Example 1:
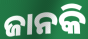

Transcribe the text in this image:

ଜାନକି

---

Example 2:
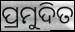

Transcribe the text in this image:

ପ୍ରମୁଦିତ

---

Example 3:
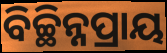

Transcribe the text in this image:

ବିଚ୍ଛିନ୍ନପ୍ରାୟ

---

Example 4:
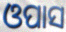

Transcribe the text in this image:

ଓପାସ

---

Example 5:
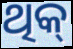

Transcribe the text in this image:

ଥିକ୍